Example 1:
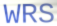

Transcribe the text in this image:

WRS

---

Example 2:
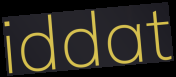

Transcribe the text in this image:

iddat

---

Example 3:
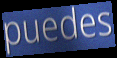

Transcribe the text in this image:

puedes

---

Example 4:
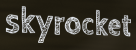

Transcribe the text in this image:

skyrocket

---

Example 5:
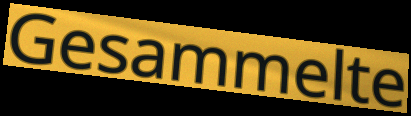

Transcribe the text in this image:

Gesammelte